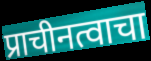
प्राचीनत्वाचा